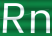
Rn